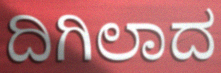
ದಿಗಿಲಾದ